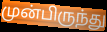
முன்பிருந்து